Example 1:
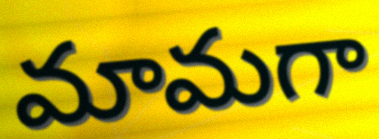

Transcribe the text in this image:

మామగా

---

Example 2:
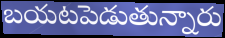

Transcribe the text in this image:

బయటపెడుతున్నారు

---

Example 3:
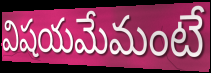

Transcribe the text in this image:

విషయమేమంటే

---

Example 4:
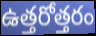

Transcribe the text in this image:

ఉత్తరోత్తరం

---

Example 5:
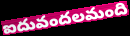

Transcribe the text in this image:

ఐదువందలమంది